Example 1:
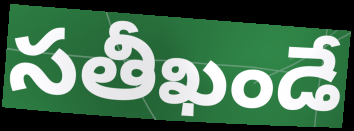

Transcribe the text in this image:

సతీఖండే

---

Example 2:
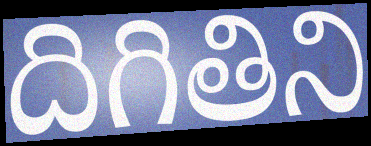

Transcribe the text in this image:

దిగితిని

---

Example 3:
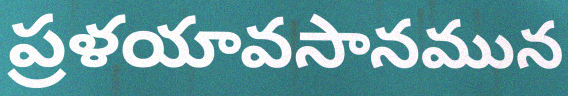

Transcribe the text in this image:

ప్రళయావసానమున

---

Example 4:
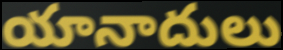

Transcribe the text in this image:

యానాదులు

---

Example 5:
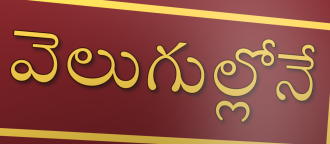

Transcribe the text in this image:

వెలుగుల్లోనే